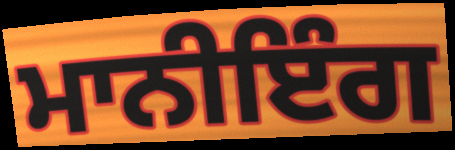
ਮਾਨੀਇੰਗ